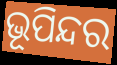
ଭୂପିନ୍ଦର